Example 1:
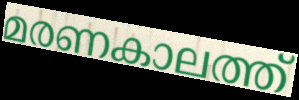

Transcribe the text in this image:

മരണകാലത്ത്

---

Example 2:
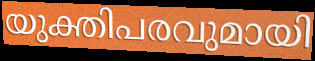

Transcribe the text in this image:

യുക്തിപരവുമായി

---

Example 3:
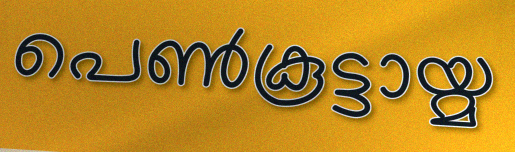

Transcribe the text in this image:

പെൺകൂട്ടായ്മ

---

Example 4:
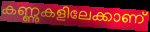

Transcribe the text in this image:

കണ്ണുകളിലേക്കാണ്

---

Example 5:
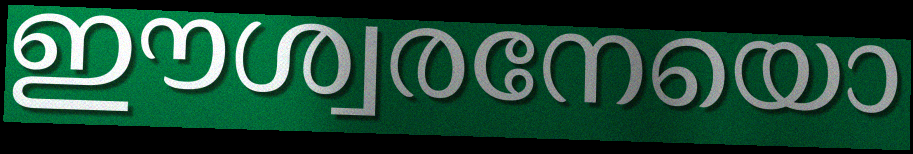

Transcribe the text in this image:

ഈശ്വരനേയൊ